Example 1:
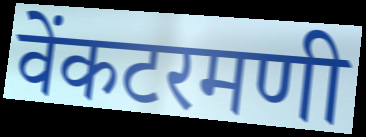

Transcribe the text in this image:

वेंकटरमणी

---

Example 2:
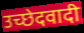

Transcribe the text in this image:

उच्छेदवादी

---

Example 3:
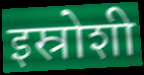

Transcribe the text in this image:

इस्रोशी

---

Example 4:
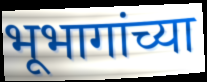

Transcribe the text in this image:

भूभागांच्या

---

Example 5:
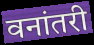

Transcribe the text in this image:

वनांतरी